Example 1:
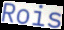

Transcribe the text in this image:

Rois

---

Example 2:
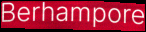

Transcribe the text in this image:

Berhampore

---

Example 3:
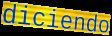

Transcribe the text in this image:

diciendo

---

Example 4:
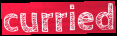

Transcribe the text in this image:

curried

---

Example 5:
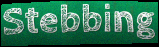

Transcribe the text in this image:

Stebbing